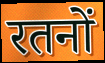
रतनों